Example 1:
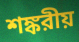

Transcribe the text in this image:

শঙ্করীয়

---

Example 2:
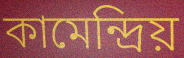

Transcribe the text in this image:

কামেন্দ্রিয়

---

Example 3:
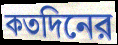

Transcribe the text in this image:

কতদিনের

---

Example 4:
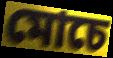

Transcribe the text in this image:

মোচে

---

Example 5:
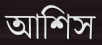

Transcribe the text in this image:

আশিস